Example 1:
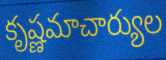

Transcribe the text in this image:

కృష్ణమాచార్యుల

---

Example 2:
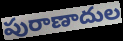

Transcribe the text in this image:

పురాణాదుల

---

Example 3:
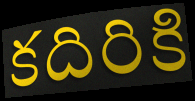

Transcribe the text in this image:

కదిరికి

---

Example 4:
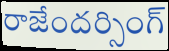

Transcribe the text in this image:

రాజేందర్సింగ్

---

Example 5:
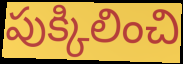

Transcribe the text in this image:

పుక్కిలించి